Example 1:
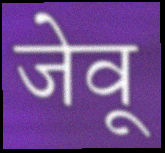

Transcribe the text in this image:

जेवू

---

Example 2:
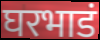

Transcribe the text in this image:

घरभाडं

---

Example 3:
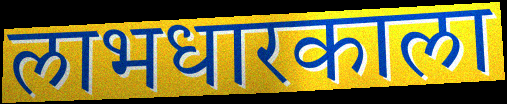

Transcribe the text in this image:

लाभधारकाला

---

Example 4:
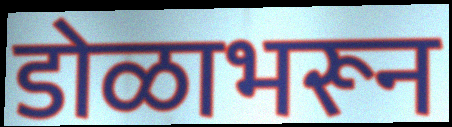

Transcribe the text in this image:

डोळाभरून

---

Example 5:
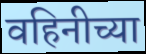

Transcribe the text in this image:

वहिनीच्या